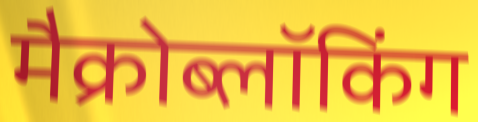
मैक्रोब्लॉकिंग